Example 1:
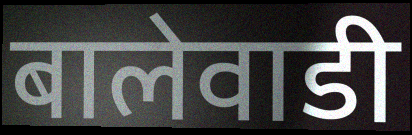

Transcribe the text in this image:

बालेवाडी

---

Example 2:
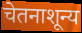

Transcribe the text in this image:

चेतनाशून्य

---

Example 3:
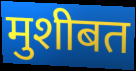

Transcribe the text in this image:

मुशीबत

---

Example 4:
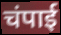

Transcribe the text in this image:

चंपाई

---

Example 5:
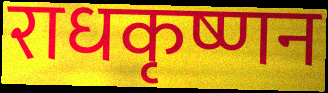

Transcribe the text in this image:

राधकृष्णन